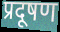
प्रदूषण